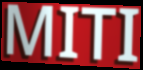
MITI